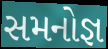
સમનોજ્ઞ